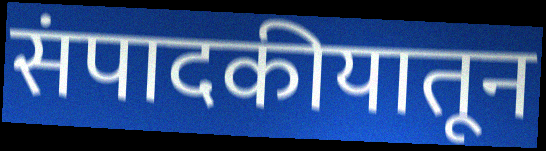
संपादकीयातून